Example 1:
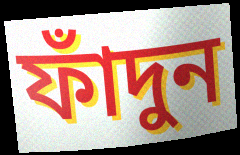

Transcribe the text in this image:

ফাঁদুন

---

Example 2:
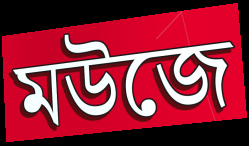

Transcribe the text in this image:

মউজে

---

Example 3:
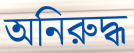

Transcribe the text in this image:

অনিরুদ্ধ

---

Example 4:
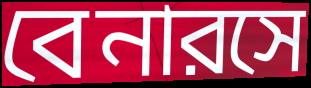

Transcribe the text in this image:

বেনারসে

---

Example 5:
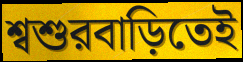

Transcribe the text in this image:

শ্বশুরবাড়িতেই